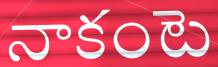
నాకంటె